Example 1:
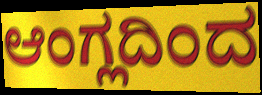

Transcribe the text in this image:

ಆಂಗ್ಲದಿಂದ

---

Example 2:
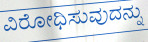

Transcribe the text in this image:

ವಿರೋಧಿಸುವುದನ್ನು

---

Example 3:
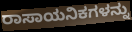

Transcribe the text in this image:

ರಾಸಾಯನಿಕಗಳನ್ನು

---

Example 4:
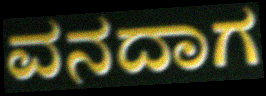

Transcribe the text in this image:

ವನದಾಗ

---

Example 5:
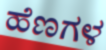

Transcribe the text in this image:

ಹೆಣಗಳ